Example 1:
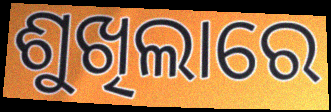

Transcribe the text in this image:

ଶୁଖିଲାରେ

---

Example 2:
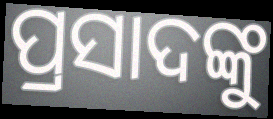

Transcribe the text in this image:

ପ୍ରସାଦଙ୍କୁ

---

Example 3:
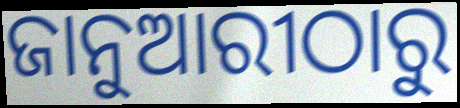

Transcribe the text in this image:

ଜାନୁଆରୀଠାରୁ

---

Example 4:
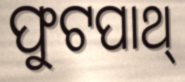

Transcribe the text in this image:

ଫୁଟପାଥ୍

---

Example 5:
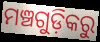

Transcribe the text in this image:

ମଞ୍ଚଗୁଡ଼ିକରୁ